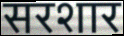
सरशार